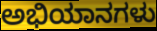
ಅಭಿಯಾನಗಳು